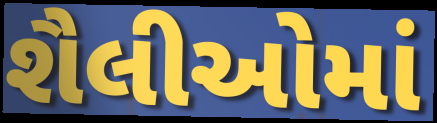
શૈલીઓમાં